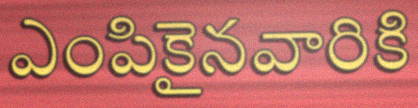
ఎంపికైనవారికి